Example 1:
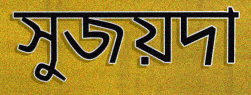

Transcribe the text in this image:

সুজয়দা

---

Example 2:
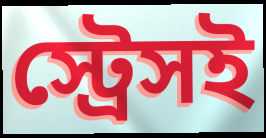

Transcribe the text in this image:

স্ট্রেসই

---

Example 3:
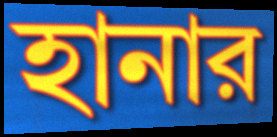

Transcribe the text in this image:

হানার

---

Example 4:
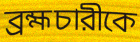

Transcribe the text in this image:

ব্রহ্মচারীকে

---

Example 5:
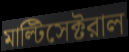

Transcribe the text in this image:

মাল্টিসেক্টরাল